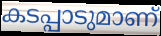
കടപ്പാടുമാണ്